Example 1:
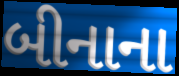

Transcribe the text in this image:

બીનાના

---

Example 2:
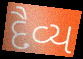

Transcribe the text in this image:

દૈવ્ય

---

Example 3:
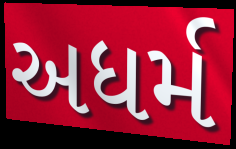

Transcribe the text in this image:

અધર્મ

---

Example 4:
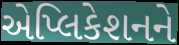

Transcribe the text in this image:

એપ્લિકેશનને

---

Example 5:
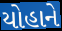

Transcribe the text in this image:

યોહાને